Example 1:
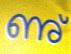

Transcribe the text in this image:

ണു്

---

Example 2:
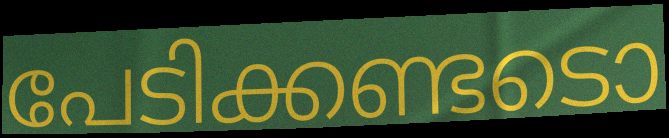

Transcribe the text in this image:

പേടിക്കണ്ടടൊ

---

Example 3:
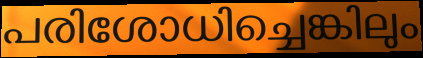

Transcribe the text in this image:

പരിശോധിച്ചെങ്കിലും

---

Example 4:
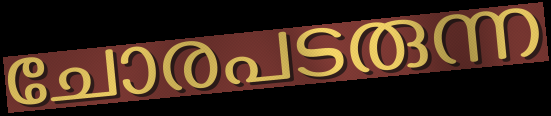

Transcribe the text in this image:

ചോരപടരുന്ന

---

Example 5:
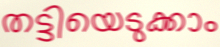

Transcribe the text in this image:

തട്ടിയെടുക്കാം